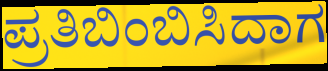
ಪ್ರತಿಬಿಂಬಿಸಿದಾಗ